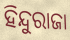
ହିନ୍ଦୁରାଜା